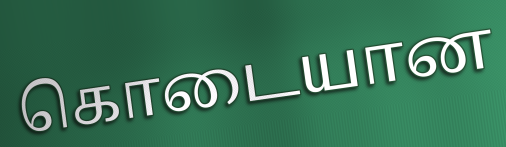
கொடையான